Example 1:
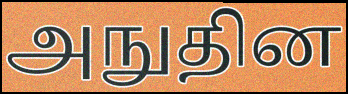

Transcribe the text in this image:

அநுதின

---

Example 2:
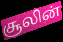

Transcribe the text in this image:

சூலின்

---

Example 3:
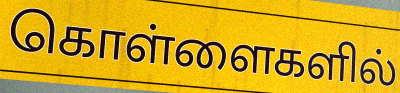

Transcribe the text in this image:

கொள்ளைகளில்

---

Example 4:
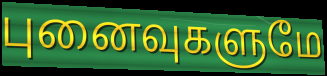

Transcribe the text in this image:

புனைவுகளுமே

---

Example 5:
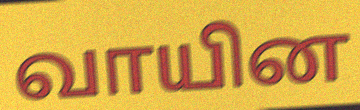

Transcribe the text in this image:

வாயின